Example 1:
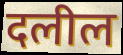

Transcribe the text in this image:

दलील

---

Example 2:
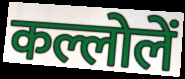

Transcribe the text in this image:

कल्लोलें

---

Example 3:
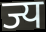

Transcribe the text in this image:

ज्य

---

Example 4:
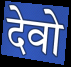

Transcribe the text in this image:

देवो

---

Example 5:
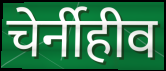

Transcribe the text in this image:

चेर्नीहीव